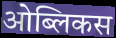
ओब्लिकस